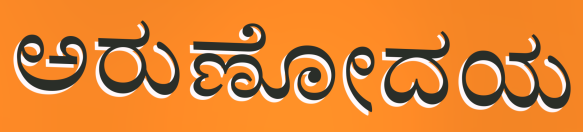
ಅರುಣೋದಯ